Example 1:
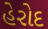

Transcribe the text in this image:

હેરોદ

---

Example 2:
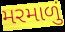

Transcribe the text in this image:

મરમાળું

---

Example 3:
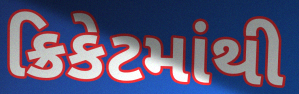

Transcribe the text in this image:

ક્રિકેટમાંથી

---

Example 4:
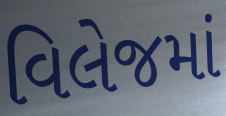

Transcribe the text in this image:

વિલેજમાં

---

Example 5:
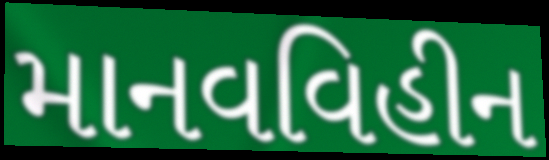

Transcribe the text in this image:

માનવવિહીન